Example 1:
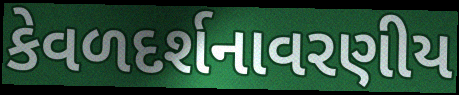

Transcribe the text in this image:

કેવળદર્શનાવરણીય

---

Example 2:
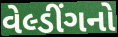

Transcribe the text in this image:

વેલ્ડીંગનો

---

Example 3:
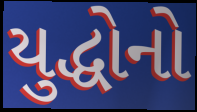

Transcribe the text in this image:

યુદ્ધોનો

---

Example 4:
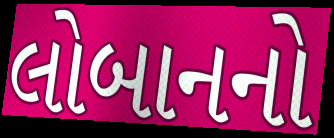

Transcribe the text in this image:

લોબાનનો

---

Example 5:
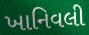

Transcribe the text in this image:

ખાનિવલી